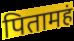
पितामहं